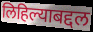
लिहिल्याबद्दल